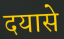
दयासे